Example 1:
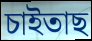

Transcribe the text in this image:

চাইতাছ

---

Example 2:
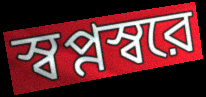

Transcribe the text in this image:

স্বপ্নস্বরে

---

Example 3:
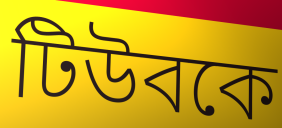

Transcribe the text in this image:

টিউবকে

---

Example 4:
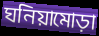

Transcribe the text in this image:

ঘনিয়ামোড়া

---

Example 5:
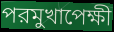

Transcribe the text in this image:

পরমুখাপেক্ষী